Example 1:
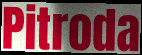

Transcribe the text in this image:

Pitroda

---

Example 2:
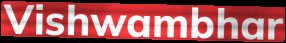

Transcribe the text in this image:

Vishwambhar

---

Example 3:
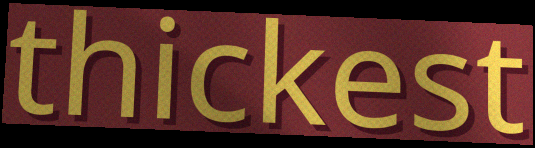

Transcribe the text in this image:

thickest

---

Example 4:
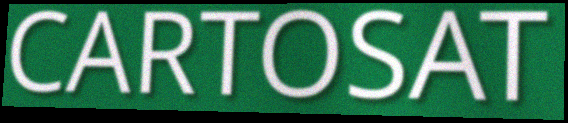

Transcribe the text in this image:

CARTOSAT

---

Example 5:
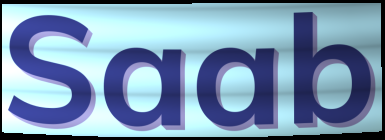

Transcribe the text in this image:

Saab